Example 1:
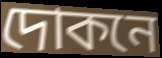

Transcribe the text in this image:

দোকনে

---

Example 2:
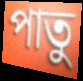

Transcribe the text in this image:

পাতু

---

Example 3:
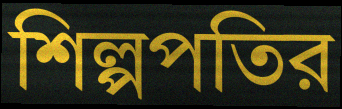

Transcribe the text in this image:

শিল্পপতির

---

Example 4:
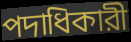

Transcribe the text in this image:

পদাধিকারী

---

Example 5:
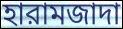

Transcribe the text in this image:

হারামজাদা